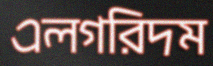
এলগরিদম